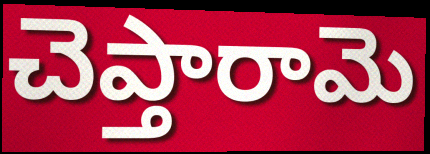
చెప్తారామె